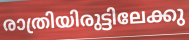
രാത്രിയിരുട്ടിലേക്കു